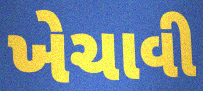
ખેચાવી